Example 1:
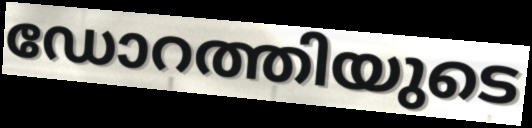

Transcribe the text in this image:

ഡോറത്തിയുടെ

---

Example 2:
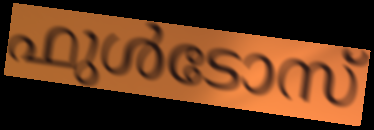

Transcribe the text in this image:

ഫുൾടോസ്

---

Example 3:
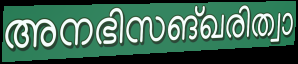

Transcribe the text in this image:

അനഭിസങ്ഖരിത്വാ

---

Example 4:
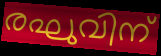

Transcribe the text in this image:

രഘുവിന്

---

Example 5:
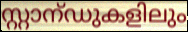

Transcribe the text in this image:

സ്റ്റാന്ഡുകളിലും